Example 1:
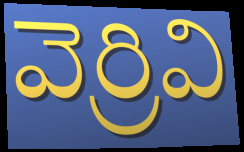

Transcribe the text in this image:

వెర్రివి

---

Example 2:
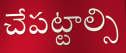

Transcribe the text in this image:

చేపట్టాల్సి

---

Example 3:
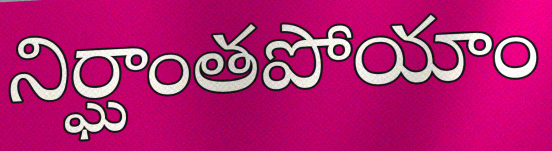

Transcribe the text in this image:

నిర్ఘాంతపోయాం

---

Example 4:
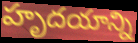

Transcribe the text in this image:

హృదయాన్ని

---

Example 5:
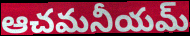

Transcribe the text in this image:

ఆచమనీయమ్